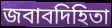
জবাবদিহিতা